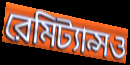
রেমিট্যান্সও